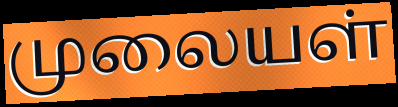
முலையள்